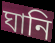
ঘানি